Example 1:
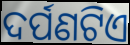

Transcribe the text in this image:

ଦର୍ପଣଟିଏ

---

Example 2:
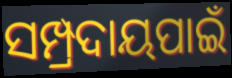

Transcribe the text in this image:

ସମ୍ପ୍ରଦାୟପାଇଁ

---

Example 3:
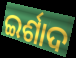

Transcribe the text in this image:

ଇର୍ଶାଦ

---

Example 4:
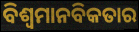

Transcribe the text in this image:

ବିଶ୍ଵମାନବିକତାର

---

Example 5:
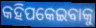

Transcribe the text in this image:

କହିପକେଇବାକୁ